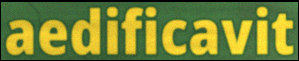
aedificavit